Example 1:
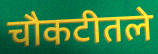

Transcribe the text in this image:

चौकटीतले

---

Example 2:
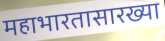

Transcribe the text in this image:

महाभारतासारख्या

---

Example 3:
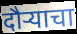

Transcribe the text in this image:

दौऱ्याचा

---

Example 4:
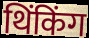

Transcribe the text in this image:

थिंकिंग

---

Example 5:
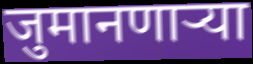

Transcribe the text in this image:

जुमानणार्‍या